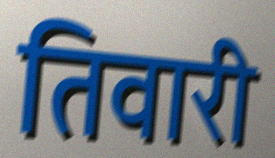
तिवारी